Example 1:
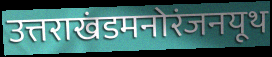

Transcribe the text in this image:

उत्तराखंडमनोरंजनयूथ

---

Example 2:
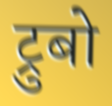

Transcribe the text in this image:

ट्रुबो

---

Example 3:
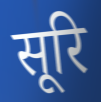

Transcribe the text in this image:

सूरि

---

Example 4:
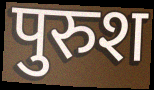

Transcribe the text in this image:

पुरुश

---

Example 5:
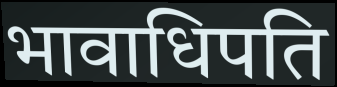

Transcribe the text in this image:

भावाधिपति